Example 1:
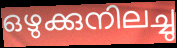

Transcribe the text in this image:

ഒഴുക്കുനിലച്ചു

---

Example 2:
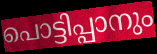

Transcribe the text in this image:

പൊട്ടിപ്പാനും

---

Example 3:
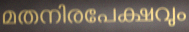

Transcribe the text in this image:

മതനിരപേക്ഷവും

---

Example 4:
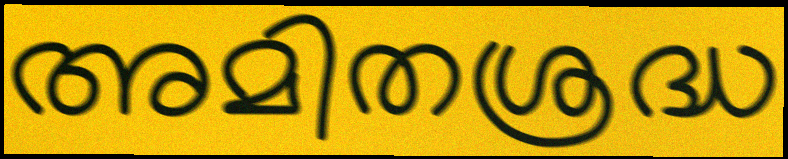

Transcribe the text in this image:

അമിതശ്രദ്ധ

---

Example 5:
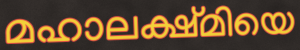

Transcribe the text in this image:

മഹാലക്ഷ്മിയെ